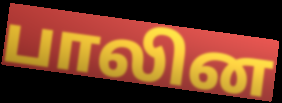
பாலின